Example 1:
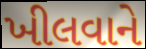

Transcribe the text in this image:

ખીલવાને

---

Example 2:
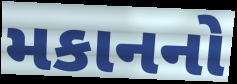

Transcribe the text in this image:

મકાનનો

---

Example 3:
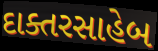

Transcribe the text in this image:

દાક્તરસાહેબ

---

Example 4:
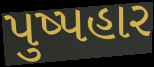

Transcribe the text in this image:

પુષ્પહાર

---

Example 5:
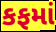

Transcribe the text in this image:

કફમાં